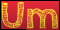
Um